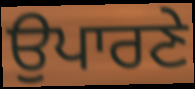
ਉਪਾਰਣੇ